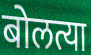
बोलत्या